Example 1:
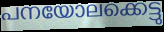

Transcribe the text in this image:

പനയോലക്കെട്ടു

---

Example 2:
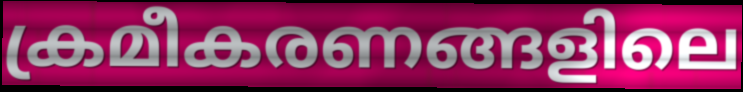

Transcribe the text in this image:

ക്രമീകരണങ്ങളിലെ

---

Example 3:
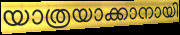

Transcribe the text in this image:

യാത്രയാക്കാനായി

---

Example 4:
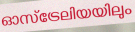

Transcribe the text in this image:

ഓസ്ട്രേലിയയിലും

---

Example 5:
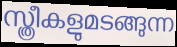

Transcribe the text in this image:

സ്ത്രീകളുമടങ്ങുന്ന